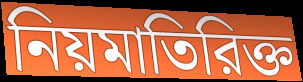
নিয়মাতিরিক্ত